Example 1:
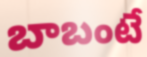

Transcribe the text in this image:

బాబంటే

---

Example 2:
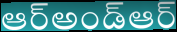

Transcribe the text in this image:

ఆర్అండ్ఆర్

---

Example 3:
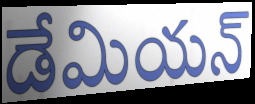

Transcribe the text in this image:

డేమియన్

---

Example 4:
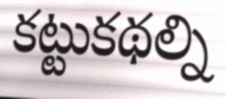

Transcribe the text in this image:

కట్టుకథల్ని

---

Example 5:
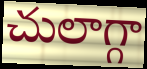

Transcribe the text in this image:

చులాగ్గా